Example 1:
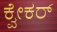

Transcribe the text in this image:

ಕ್ವೇಕರ್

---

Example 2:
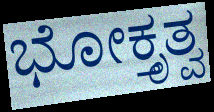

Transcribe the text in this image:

ಭೋಕ್ತೃತ್ವ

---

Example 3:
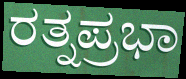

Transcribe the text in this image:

ರತ್ನಪ್ರಭಾ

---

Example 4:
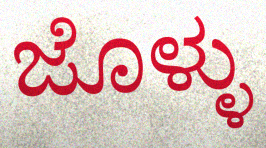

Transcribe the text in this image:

ಜೊಳ್ಳು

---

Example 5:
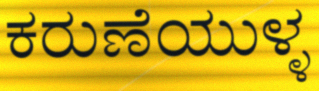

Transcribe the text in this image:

ಕರುಣೆಯುಳ್ಳ